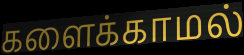
களைக்காமல்